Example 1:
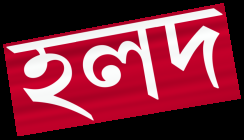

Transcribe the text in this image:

হলদ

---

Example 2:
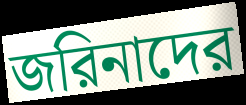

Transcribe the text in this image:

জরিনাদের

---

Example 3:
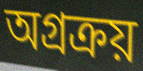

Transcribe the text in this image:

অগ্রক্রয়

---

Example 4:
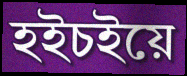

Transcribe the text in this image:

হইচইয়ে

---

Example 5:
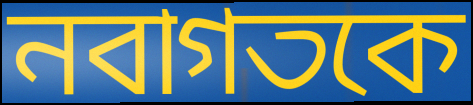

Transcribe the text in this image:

নবাগতকে